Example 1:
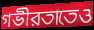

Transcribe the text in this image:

গভীরতাতেও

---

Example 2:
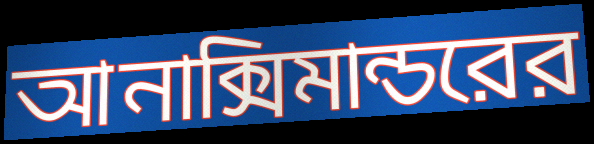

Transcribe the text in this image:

আনাক্সিমান্ডরের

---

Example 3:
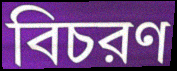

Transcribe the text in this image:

বিচরণ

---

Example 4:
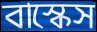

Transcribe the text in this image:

বাস্কেস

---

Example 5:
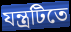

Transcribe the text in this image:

যন্ত্রটিতে